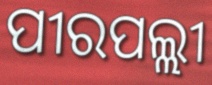
ପୀରପଲ୍ଲୀ